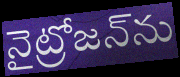
నైట్రోజన్‌ను